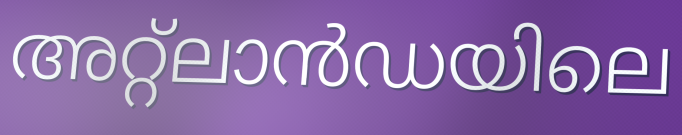
അറ്റ്ലാൻഡയിലെ